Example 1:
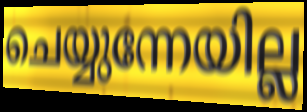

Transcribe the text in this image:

ചെയ്യുന്നേയില്ല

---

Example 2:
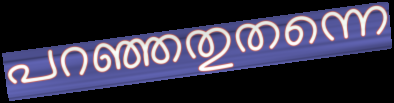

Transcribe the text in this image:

പറഞ്ഞതുതന്നെ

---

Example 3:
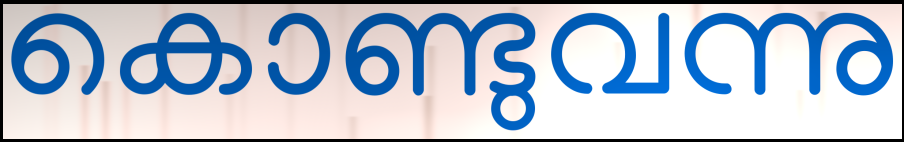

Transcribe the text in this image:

കൊണ്ടുവന്നു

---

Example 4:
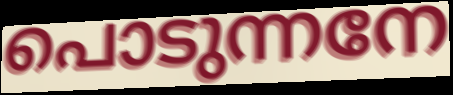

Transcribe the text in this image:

പൊടുന്നനേ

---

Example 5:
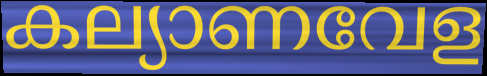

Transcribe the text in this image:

കല്യാണവേള